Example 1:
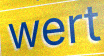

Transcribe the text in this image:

wert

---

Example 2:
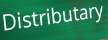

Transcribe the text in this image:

Distributary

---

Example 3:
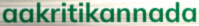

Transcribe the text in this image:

aakritikannada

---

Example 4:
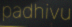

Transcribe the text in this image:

padhivu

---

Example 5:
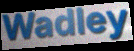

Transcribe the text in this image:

Wadley